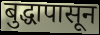
बुद्धापासून